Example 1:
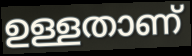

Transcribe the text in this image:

ഉള്ളതാണ്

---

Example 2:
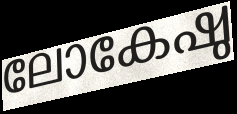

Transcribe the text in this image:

ലോകേഷു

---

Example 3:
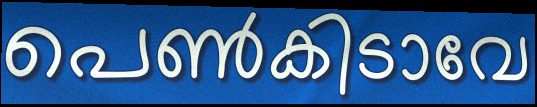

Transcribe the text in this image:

പെൺകിടാവേ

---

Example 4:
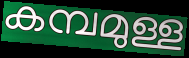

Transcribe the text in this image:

കമ്പമുള്ള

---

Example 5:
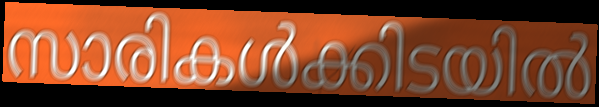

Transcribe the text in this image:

സാരികൾക്കിടയിൽ